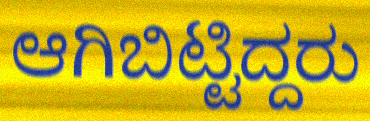
ಆಗಿಬಿಟ್ಟಿದ್ದರು